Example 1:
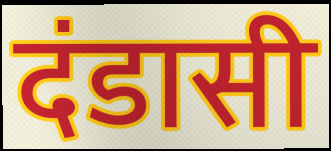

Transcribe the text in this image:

दंडासी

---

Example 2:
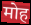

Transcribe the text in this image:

मोह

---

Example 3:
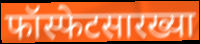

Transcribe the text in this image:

फॉस्फेटसारख्या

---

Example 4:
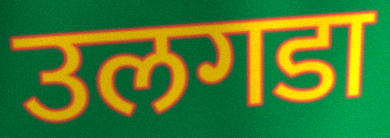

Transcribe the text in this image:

उलगडा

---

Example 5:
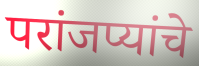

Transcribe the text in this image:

परांजप्यांचे